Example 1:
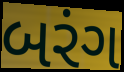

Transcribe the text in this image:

બરંગ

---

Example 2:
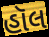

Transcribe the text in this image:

હૉલ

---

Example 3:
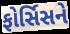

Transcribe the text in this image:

ફોર્સિસને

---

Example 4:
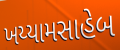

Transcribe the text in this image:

ખય્યામસાહેબ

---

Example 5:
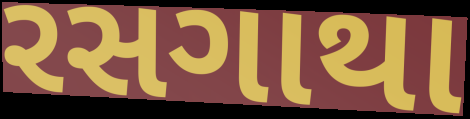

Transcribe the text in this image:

રસગાથા